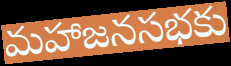
మహాజనసభకు